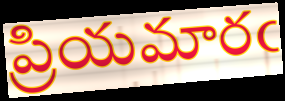
ప్రియమారఁ